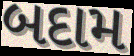
બદામ